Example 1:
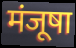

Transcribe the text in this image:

मंजूषा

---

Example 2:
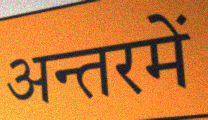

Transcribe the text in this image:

अन्तरमें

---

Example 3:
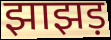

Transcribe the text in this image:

झाझड़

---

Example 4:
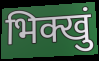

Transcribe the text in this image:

भिक्खुं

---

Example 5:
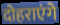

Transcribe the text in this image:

दोहराएंगे